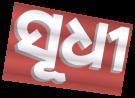
ସୂଧୀ